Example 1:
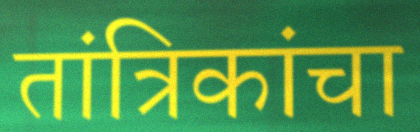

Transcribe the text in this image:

तांत्रिकांचा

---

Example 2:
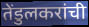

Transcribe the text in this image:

तेंडुलकरांची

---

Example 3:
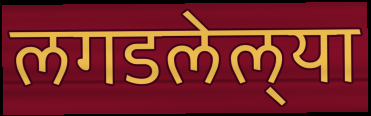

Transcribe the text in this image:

लगडलेल्या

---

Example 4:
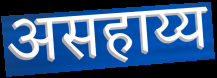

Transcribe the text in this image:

असहाय्य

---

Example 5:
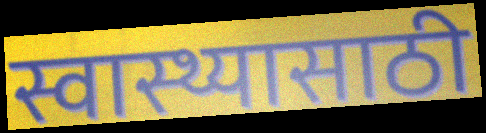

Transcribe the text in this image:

स्वास्थ्यासाठी